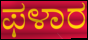
ಫಳಾರ